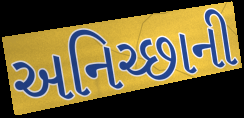
અનિચ્છાની